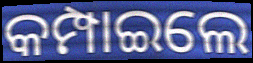
କମ୍ପାଇଲେ